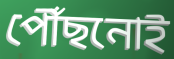
পৌঁছনোই